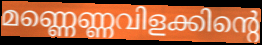
മണ്ണെണ്ണവിളക്കിന്റെ